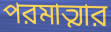
পরমাত্মার